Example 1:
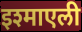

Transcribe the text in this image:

इश्माएली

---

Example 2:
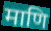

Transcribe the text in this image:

माणि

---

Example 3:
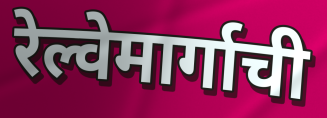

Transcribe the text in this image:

रेल्वेमार्गाची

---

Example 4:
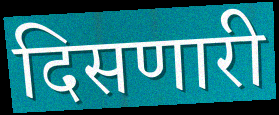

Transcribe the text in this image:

दिसणारी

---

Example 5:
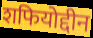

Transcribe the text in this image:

शफियोद्दीन